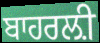
ਬਾਹਰਲ਼ੀ